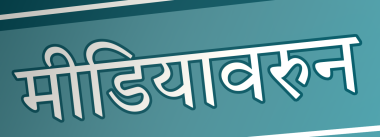
मीडियावरुन